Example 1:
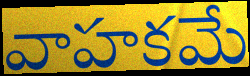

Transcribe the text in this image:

వాహకమే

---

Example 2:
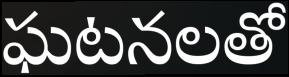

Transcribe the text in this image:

ఘటనలతో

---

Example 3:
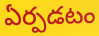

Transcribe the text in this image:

ఏర్పడటం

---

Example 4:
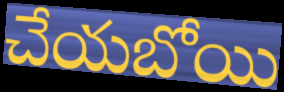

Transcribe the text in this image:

చేయబోయి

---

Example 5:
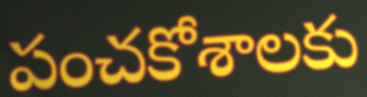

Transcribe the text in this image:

పంచకోశాలకు